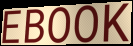
EBOOK